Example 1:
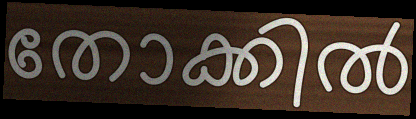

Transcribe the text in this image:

തോക്കിൽ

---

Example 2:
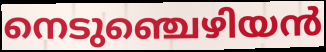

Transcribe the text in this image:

നെടുഞ്ചെഴിയൻ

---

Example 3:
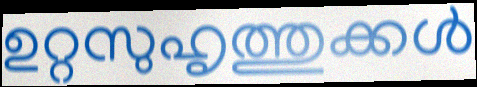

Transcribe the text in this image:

ഉറ്റസുഹൃത്തുക്കൾ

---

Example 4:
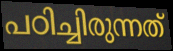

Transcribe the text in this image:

പഠിച്ചിരുന്നത്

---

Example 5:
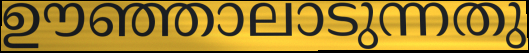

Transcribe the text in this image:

ഊഞ്ഞാലാടുന്നതു